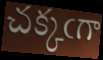
చక్కఁగా